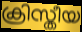
ക്രിസ്തീയ